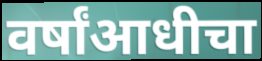
वर्षांआधीचा